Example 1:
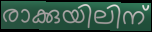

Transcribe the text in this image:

രാക്കുയിലിന്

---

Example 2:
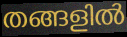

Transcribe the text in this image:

തങ്ങളിൽ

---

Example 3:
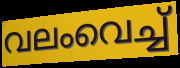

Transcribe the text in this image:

വലംവെച്ച്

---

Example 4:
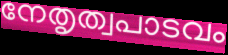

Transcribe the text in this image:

നേതൃത്വപാടവം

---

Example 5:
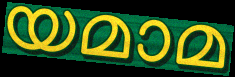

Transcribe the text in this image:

യമാമ